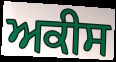
ਅਕੀਸ